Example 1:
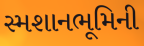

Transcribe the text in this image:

સ્મશાનભૂમિની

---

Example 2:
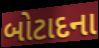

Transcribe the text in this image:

બોટાદના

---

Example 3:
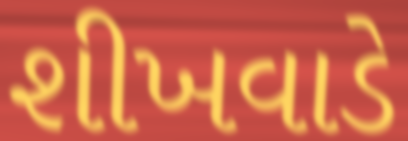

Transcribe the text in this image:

શીખવાડે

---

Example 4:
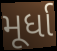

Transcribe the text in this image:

મૂર્ધા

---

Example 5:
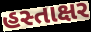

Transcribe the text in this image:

હસ્તાક્ષર